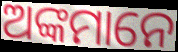
ଅଙ୍କମାନେ